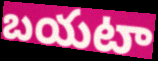
బయటా